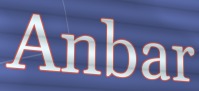
Anbar